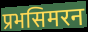
प्रभसिमरन